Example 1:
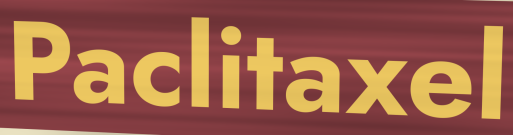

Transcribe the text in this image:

Paclitaxel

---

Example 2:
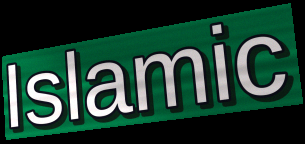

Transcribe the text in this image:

Islamic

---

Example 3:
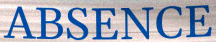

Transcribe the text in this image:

ABSENCE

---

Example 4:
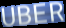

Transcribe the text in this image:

UBER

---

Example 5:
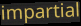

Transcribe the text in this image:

impartial